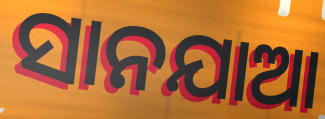
ସାନଯାଆ